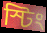
স্টিং